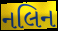
નલિન